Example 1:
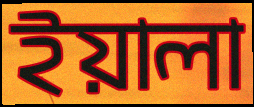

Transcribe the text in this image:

ইয়ালা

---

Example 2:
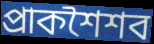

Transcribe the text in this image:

প্রাকশৈশব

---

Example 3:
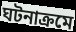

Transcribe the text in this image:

ঘটনাক্রমে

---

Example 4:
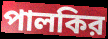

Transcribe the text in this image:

পালকির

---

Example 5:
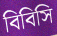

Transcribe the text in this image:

বিবিসি